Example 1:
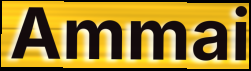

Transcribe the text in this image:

Ammai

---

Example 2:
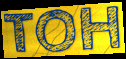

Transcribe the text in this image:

TOH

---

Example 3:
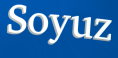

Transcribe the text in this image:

Soyuz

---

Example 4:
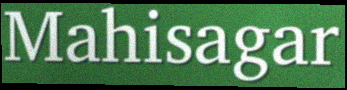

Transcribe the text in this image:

Mahisagar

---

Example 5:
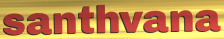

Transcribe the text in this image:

santhvana